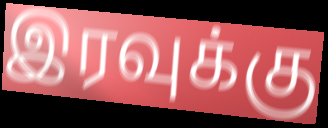
இரவுக்கு